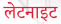
लेटनाइट